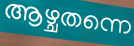
ആഴ്ചതന്നെ